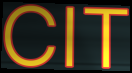
CIT